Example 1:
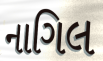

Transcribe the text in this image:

નાગિલ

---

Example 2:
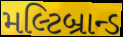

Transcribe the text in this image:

મલ્ટિબ્રાન્ડ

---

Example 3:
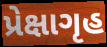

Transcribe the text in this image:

પ્રેક્ષાગૃહ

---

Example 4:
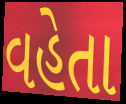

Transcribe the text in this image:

વહેતા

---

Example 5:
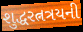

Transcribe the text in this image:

શુદ્ધરત્નત્રયની